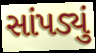
સાંપડ્યું